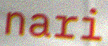
nari